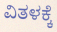
ವಿತಳಕ್ಕೆ